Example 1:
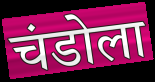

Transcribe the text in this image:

चंडोला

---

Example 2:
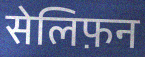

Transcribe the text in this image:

सेलिफ़न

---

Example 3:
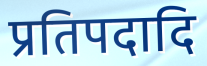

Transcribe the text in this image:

प्रतिपदादि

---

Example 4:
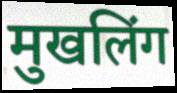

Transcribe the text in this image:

मुखलिंग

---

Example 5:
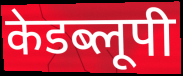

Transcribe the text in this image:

केडब्लूपी